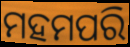
ମହମପରି